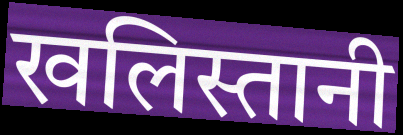
खलिस्तानी